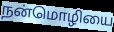
நன்மொழியை